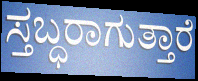
ಸ್ತಬ್ಧರಾಗುತ್ತಾರೆ